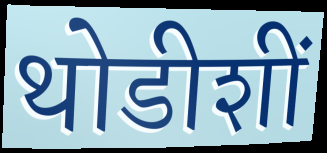
थोडीशीं